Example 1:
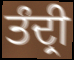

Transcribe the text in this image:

ਤੰਦ੍ਰੀ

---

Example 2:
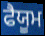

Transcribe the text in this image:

ਫੈਯੂਮ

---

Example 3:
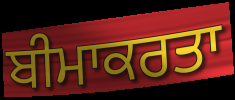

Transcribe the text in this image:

ਬੀਮਾਕਰਤਾ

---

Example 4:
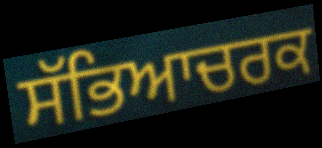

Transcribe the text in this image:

ਸੱਭਿਆਚਰਕ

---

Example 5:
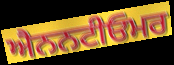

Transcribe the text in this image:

ਐਨਨਟੀਓਮਰ